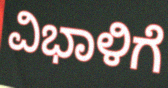
ವಿಭಾಳಿಗೆ